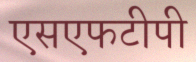
एसएफटीपी